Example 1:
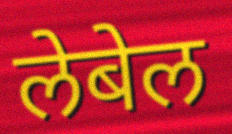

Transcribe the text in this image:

लेबेल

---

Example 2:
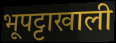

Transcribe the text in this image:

भूपट्टाखाली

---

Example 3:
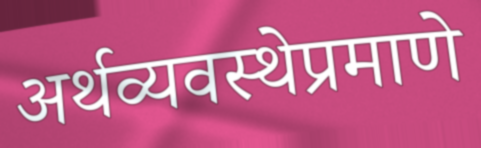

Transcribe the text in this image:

अर्थव्यवस्थेप्रमाणे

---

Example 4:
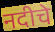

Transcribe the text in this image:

नदीचे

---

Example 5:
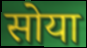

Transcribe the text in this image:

सोया